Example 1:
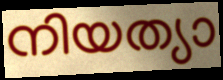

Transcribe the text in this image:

നിയത്യാ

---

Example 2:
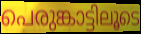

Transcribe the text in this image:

പെരുങ്കാട്ടിലൂടെ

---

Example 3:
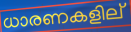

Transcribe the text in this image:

ധാരണകളില്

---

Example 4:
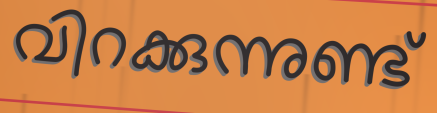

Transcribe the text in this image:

വിറക്കുന്നുണ്ട്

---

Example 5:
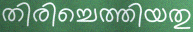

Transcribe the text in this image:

തിരിച്ചെത്തിയതു